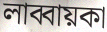
লাব্বায়কা